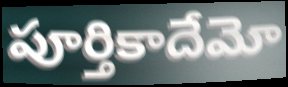
పూర్తికాదేమో